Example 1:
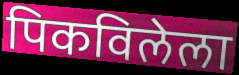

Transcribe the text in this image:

पिकविलेला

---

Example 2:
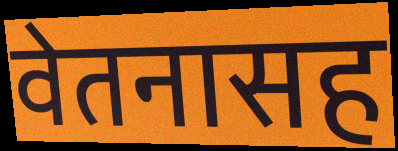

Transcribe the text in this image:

वेतनासह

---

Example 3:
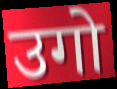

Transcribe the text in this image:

उगो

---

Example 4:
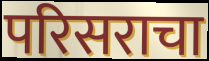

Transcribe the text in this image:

परिसराचा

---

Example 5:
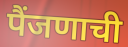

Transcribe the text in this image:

पैंजणाची